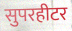
सुपरहीटर